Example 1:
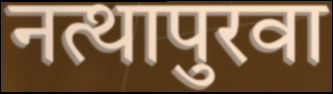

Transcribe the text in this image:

नत्थापुरवा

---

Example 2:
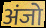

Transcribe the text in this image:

अंजो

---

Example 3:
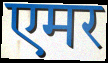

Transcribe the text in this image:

एमर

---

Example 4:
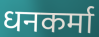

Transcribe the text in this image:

धनकर्मा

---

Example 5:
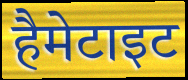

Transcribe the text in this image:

हैमेटाइट